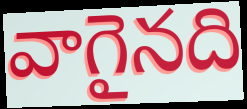
వాగైనది